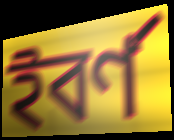
ইবৰ্ণ